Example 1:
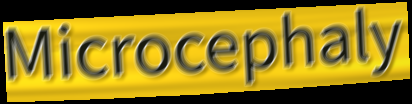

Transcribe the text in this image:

Microcephaly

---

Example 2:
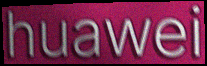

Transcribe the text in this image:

huawei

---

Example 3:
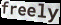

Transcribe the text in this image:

freely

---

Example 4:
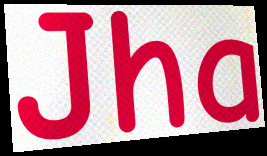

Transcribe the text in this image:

Jha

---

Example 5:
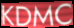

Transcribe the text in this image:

KDMC